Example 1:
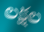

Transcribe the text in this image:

లక్షల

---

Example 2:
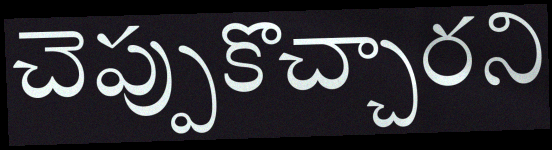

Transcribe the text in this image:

చెప్పుకొచ్చారని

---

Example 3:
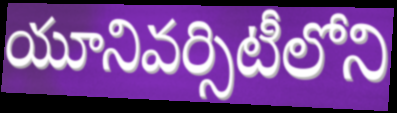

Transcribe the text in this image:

యూనివర్సిటీలోని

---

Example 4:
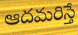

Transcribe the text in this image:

ఆదమరిస్తే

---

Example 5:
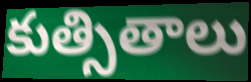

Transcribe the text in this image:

కుత్సితాలు